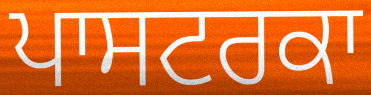
ਪਾਸਟਰਕਾ